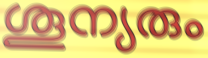
ശൂന്യരും